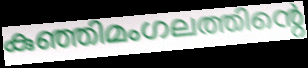
കുഞ്ഞിമംഗലത്തിന്റെ